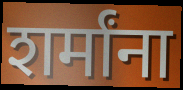
शर्मांना